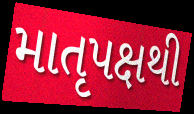
માતૃપક્ષથી